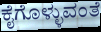
ಕೈಗೊಳ್ಳುವಂತೆ